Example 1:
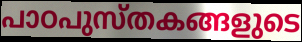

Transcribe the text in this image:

പാഠപുസ്തകങ്ങളുടെ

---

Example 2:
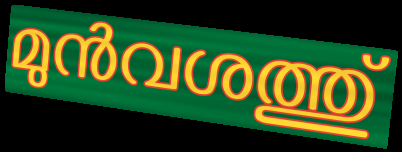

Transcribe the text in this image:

മുൻവശത്തു്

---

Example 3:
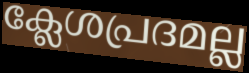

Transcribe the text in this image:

ക്ലേശപ്രദമല്ല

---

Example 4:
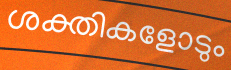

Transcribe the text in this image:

ശക്തികളോടും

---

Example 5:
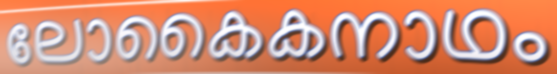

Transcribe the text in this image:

ലോകൈകനാഥം